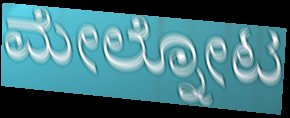
ಮೇಲ್ನೋಟ